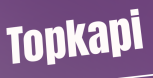
Topkapi